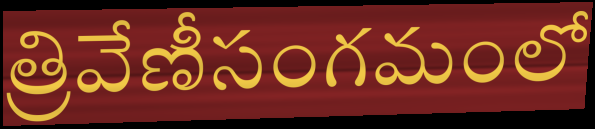
త్రివేణీసంగమంలో